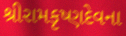
શ્રીરામકૃષ્ણદેવના